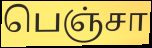
பெஞ்சா